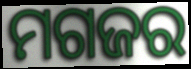
ମଗଜର